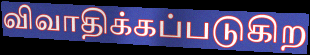
விவாதிக்கப்படுகிற